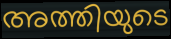
അത്തിയുടെ